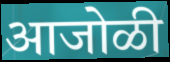
आजोळी